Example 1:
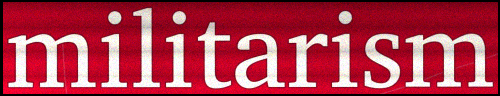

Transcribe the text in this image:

militarism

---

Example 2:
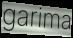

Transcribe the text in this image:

garima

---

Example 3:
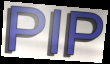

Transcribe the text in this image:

PIP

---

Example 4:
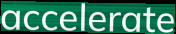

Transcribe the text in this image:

accelerate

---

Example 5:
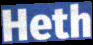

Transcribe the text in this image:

Heth